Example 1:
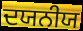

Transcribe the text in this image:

ਦਯਨੀਯ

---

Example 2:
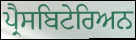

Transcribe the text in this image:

ਪ੍ਰੈਸਬਿਟੇਰਿਅਨ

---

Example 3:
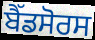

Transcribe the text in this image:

ਬੈੱਡਸੋਰਸ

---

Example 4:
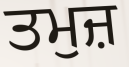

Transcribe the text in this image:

ਤਮੁਜ਼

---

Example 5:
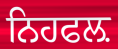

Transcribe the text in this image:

ਨਿਹਫਲ਼